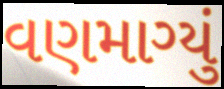
વણમાગ્યું